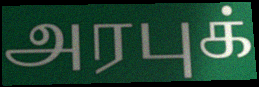
அரபுக்